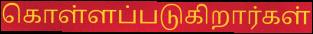
கொள்ளப்படுகிறார்கள்